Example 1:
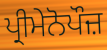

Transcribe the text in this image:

ਪ੍ਰੀਮੇਨੋਪੌਜ਼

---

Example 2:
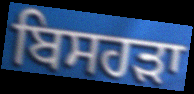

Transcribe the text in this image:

ਬਿਸਹੜਾ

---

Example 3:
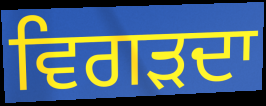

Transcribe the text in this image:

ਵਿਗੜਦਾ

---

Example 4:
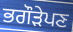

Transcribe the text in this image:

ਭਗੌੜੇਪਣ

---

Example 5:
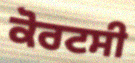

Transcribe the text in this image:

ਕੋਰਟਸੀ